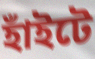
হাঁইটে